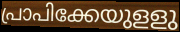
പ്രാപിക്കേയുളളു